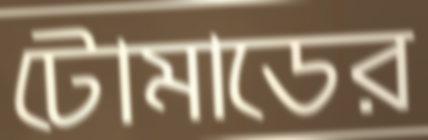
টোমাডের